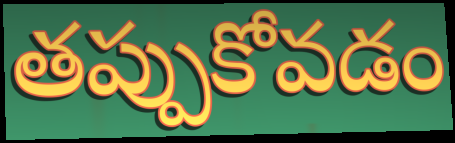
తప్పుకోవడం